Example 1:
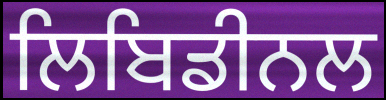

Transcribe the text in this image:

ਲਿਬਿਡੀਨਲ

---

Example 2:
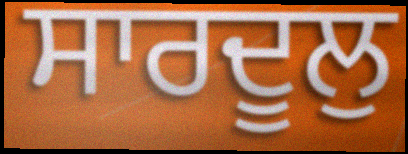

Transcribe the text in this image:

ਸਾਰਦੂਲੁ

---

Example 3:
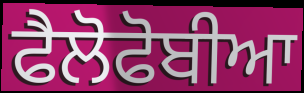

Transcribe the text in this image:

ਫੈਲੋਫੋਬੀਆ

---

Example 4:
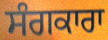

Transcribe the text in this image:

ਸੰਗਕਾਰਾ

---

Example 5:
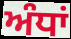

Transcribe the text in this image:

ਅੰਧਾਂ